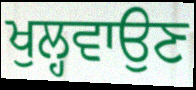
ਖੁਲ੍ਹਵਾਉਣ